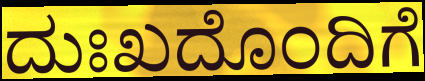
ದುಃಖದೊಂದಿಗೆ